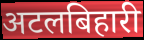
अटलबिहारी